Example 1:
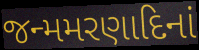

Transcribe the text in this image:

જન્મમરણાદિનાં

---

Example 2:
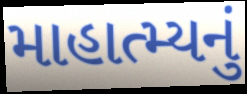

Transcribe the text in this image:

માહાત્મ્યનું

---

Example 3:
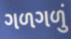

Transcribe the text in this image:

ગળગળું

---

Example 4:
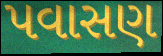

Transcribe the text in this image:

પવાસણ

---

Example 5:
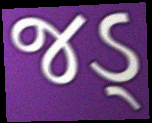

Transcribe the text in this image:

જડ્